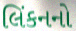
લિંકનનો